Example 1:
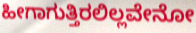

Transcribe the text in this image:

ಹೀಗಾಗುತ್ತಿರಲಿಲ್ಲವೇನೋ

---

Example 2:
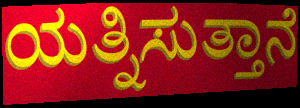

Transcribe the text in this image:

ಯತ್ನಿಸುತ್ತಾನೆ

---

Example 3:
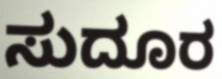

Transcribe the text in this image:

ಸುದೂರ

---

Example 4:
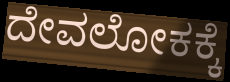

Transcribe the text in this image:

ದೇವಲೋಕಕ್ಕೆ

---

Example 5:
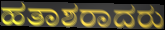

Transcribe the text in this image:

ಹತಾಶರಾದರು